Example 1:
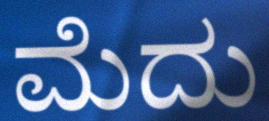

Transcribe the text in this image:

ಮೆದು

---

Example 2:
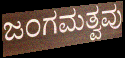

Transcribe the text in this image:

ಜಂಗಮತ್ವವು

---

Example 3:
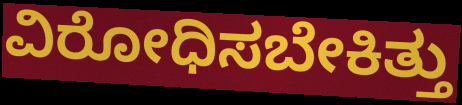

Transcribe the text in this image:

ವಿರೋಧಿಸಬೇಕಿತ್ತು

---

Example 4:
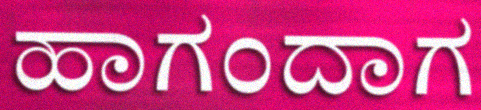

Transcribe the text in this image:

ಹಾಗಂದಾಗ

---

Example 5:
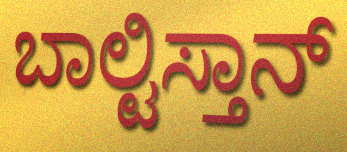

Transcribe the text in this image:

ಬಾಲ್ಟಿಸ್ತಾನ್